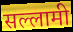
सल्लामी